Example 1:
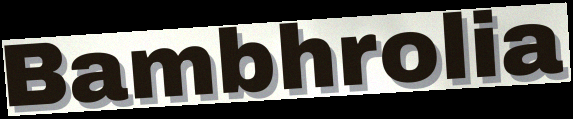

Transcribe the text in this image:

Bambhrolia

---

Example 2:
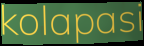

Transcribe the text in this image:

kolapasi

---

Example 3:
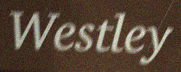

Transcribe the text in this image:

Westley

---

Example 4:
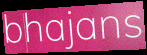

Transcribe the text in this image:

bhajans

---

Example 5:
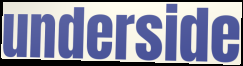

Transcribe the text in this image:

underside